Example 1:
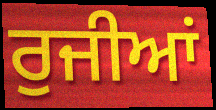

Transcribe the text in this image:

ਰੁਜੀਆਂ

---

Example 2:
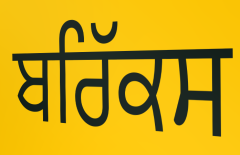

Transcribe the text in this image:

ਬਰਿੱਕਸ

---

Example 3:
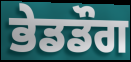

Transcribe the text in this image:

ਭੇਡਡੌਗ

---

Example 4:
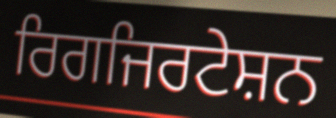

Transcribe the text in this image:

ਰਿਗਜਿਰਟੇਸ਼ਨ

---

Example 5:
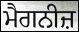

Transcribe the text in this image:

ਮੈਗਨੀਜ਼